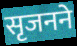
सृजनने